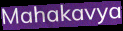
Mahakavya